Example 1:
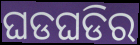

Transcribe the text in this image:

ଘଡଘଡିର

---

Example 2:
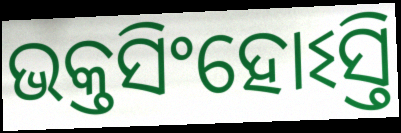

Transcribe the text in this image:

ଭକ୍ତସିଂହୋଽସ୍ତି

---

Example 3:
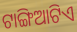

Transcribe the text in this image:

ଟାଙ୍ଗିଆଟିଏ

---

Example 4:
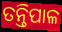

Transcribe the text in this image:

ତନ୍ତିପାଳ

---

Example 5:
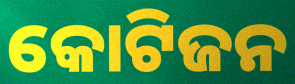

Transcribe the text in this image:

କୋଟିଜନ